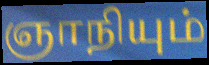
ஞாநியும்